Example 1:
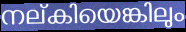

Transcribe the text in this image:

നല്‌കിയെങ്കിലും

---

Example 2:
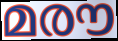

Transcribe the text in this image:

മരൗ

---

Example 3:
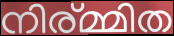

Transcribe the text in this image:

നിര്മ്മിത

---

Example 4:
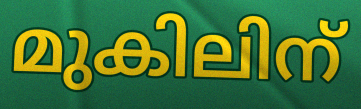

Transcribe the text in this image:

മുകിലിന്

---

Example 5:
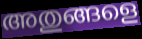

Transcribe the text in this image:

അതുങ്ങളെ